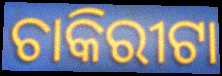
ଚାକିରୀଟା